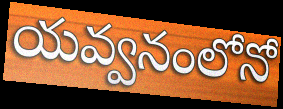
యవ్వనంలోనో